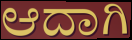
ಆದಾಗಿ